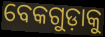
ବେକଗୁଡ଼ାକୁ